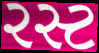
રસ્ટ